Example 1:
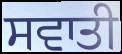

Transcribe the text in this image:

ਸਵਾਤੀ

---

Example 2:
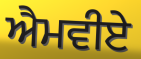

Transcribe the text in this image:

ਐਮਵੀਏ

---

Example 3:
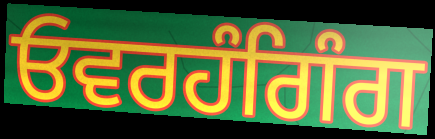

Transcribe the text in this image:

ਓਵਰਹੰਗਿੰਗ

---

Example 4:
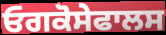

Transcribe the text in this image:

ਓਗਕੋਸੇਫਾਲਸ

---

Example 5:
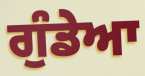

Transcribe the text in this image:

ਗੁੰਡੇਆ